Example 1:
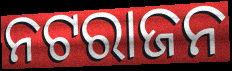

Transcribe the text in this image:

ନଟରାଜନ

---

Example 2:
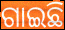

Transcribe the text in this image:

ଗାଇଛି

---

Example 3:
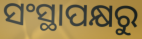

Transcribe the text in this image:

ସଂସ୍ଥାପକ୍ଷରୁ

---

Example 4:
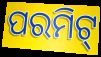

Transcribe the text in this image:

ପରମିଟ୍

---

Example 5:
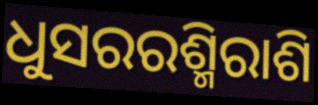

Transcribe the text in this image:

ଧୁସରରଶ୍ମିରାଶି